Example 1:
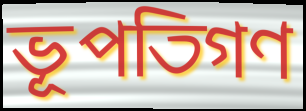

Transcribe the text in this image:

ভূপতিগণ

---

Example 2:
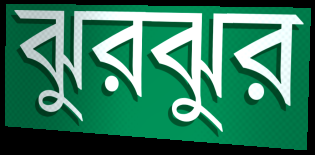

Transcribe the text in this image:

ঝুরঝুর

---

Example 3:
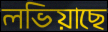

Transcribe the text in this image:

লভিয়াছে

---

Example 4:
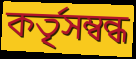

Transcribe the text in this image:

কর্তৃসম্বন্ধ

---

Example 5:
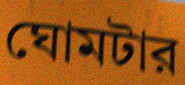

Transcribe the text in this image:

ঘোমটার